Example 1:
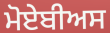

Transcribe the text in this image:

ਮੋਏਬੀਅਸ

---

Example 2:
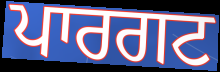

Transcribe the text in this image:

ਪਾਰਗਟ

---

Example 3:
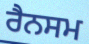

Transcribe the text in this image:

ਰੈਨਸਮ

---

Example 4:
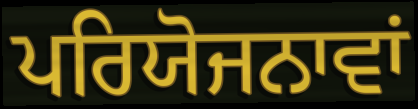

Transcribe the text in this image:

ਪਰਿਯੋਜਨਾਵਾਂ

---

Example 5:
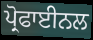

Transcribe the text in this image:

ਪ੍ਰੋਫਾਈਨਲ